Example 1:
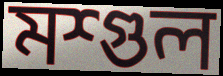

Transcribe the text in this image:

মশ্গুল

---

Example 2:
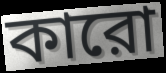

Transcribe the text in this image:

কারো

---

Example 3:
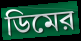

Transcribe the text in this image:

ডিমের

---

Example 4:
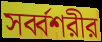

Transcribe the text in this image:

সর্ব্বশরীর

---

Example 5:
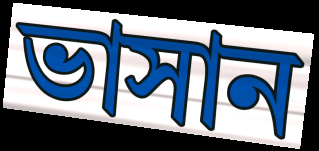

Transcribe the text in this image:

ভাসান